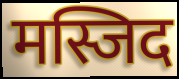
मस्जिद